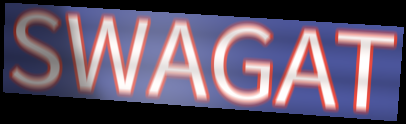
SWAGAT